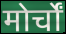
मोर्चों